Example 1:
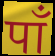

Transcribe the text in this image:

पाँ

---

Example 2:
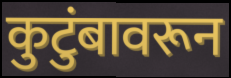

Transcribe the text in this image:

कुटुंबावरून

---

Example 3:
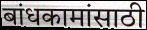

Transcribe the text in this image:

बांधकामांसाठी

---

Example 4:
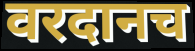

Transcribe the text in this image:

वरदानच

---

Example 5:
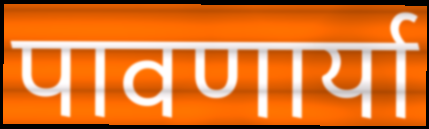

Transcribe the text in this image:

पावणार्या